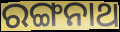
ରଙ୍ଗନାଥ